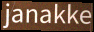
janakke